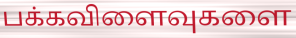
பக்கவிளைவுகளை